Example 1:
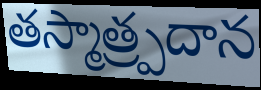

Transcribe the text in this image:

తస్మాత్ర్పదాన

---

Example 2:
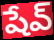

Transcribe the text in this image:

షేవ్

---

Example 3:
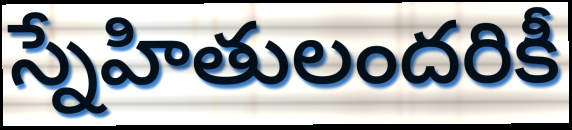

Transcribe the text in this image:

స్నేహితులందరికీ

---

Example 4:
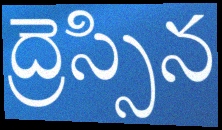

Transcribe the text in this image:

ద్రెస్సిన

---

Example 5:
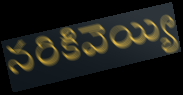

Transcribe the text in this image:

నరికివెయ్యి